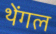
थेंगल